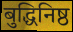
बुद्धिनिष्ठ